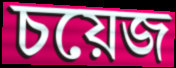
চয়েজ